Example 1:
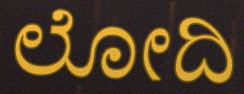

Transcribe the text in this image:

ಲೋದಿ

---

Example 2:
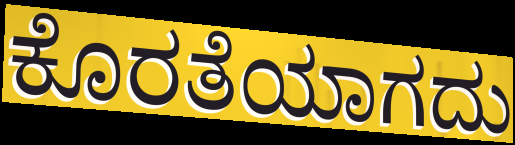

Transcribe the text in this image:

ಕೊರತೆಯಾಗದು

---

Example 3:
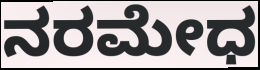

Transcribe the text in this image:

ನರಮೇಧ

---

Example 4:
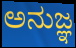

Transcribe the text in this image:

ಅನುಜ್ಞ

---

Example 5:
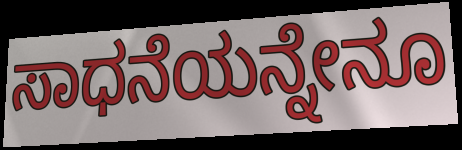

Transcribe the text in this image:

ಸಾಧನೆಯನ್ನೇನೂ